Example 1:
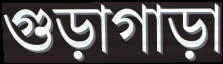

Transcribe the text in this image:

গুড়াগাড়া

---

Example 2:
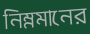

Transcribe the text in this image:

নিম্নমানের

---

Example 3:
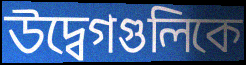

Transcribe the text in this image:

উদ্বেগগুলিকে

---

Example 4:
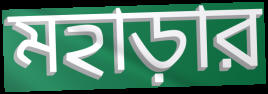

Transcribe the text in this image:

মহাড়ার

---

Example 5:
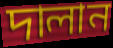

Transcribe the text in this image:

দালান